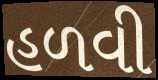
હળવી